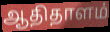
ஆதிதாளம்